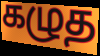
கழுத